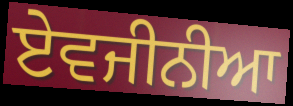
ਏਵਜੀਨੀਆ